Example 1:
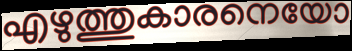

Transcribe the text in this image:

എഴുത്തുകാരനെയോ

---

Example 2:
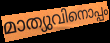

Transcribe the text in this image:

മാത്യുവിനൊപ്പം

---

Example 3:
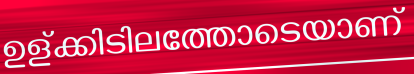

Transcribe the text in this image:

ഉള്ക്കിടിലത്തോടെയാണ്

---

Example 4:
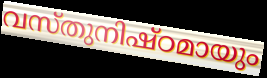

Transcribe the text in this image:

വസ്തുനിഷ്ഠമായും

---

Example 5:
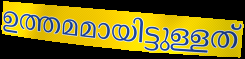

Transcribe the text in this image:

ഉത്തമമായിട്ടുള്ളത്